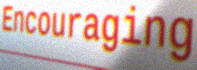
Encouraging